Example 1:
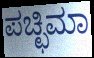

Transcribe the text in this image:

ಪಚ್ಛಿಮಾ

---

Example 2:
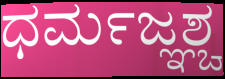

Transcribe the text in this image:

ಧರ್ಮಜ್ಞಶ್ಚ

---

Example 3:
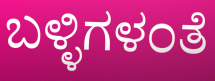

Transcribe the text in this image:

ಬಳ್ಳಿಗಳಂತೆ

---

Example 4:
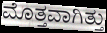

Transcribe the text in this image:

ಮೊತ್ತವಾಗಿತ್ತು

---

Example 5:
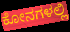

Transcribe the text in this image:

ಕೋನಗಳಲ್ಲಿ